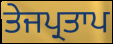
ਤੇਜਪ੍ਰਤਾਪ